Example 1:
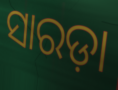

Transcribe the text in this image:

ସାରଡ଼ା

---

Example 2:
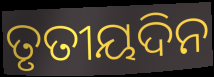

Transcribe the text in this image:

ତୃତୀୟଦିନ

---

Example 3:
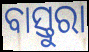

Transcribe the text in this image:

ବାସ୍ତୁରା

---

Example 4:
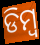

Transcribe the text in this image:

ଡିମ୍ବ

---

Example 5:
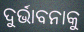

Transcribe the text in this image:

ଦୁର୍ଭାବନାକୁ